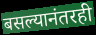
बसल्यानंतरही